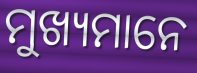
ମୁଖ୍ୟମାନେ